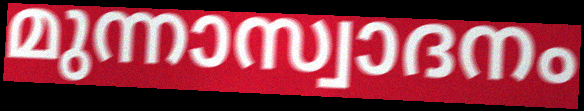
മുന്നാസ്വാദനം